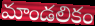
మాండలికం